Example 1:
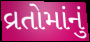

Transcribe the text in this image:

વ્રતોમાંનું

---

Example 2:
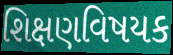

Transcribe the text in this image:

શિક્ષણવિષયક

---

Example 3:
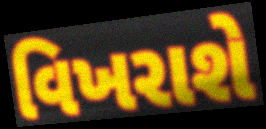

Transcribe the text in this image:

વિખરાશે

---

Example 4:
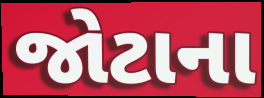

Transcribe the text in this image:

જોટાના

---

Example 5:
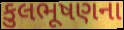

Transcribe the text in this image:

કુલભૂષણના